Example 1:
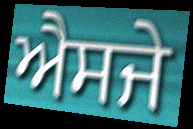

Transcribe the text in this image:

ਐਸਜੇ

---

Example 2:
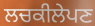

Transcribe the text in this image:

ਲਚਕੀਲੇਪਣ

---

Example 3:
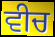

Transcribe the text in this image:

ਵੀਚ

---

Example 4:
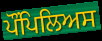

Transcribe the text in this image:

ਪੌਂਪਿਲਿਅਸ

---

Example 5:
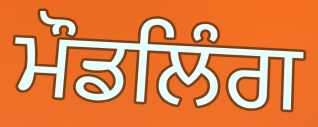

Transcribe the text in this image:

ਮੌਡਲਿੰਗ